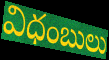
విధంబులు